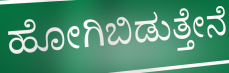
ಹೋಗಿಬಿಡುತ್ತೇನೆ